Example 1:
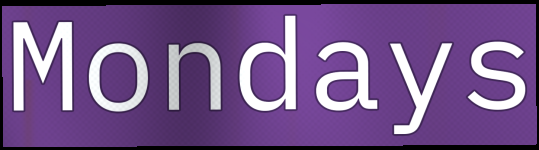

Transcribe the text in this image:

Mondays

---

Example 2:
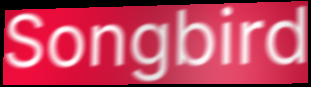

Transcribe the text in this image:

Songbird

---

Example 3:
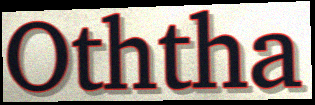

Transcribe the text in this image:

Oththa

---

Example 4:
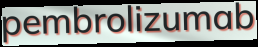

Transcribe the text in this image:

pembrolizumab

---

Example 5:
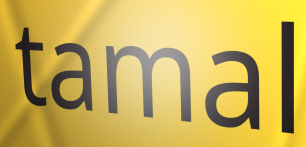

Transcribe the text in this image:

tamal